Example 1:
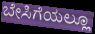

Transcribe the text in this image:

ಬೇಸಿಗೆಯಲ್ಲೂ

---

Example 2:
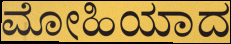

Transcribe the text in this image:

ಮೋಹಿಯಾದ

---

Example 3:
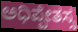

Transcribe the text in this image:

ಅಧಿಪ್ಪೇತಸ್ಸ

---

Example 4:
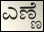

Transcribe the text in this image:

ಎಣ್ಣೆ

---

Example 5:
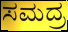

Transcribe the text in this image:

ಸಮದ್ರ